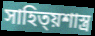
সাহিত্য়শাস্ত্ৰ